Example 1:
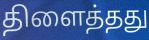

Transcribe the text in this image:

திளைத்தது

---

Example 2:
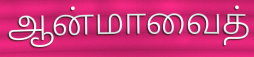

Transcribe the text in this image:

ஆன்மாவைத்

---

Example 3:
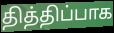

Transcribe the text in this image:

தித்திப்பாக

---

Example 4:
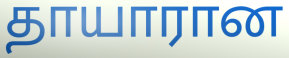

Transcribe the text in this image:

தாயாரான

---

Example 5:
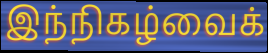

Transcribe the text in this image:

இந்நிகழ்வைக்